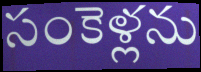
సంకెళ్లను